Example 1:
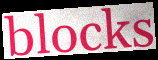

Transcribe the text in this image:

blocks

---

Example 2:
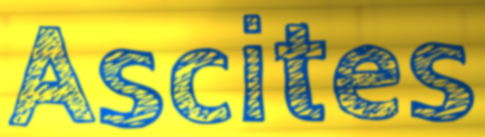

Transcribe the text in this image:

Ascites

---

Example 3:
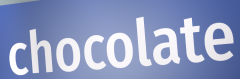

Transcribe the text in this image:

chocolate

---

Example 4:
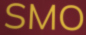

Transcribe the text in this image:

SMO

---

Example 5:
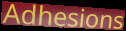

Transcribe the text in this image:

Adhesions